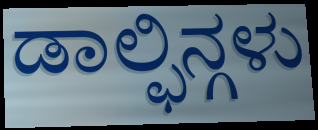
ಡಾಲ್ಫಿನ್ಗಳು